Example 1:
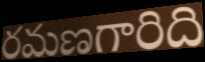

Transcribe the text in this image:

రమణగారిది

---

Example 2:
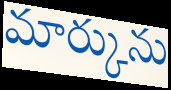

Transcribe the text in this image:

మార్కును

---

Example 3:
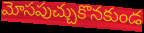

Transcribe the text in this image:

మోసపుచ్చుకొనకుండ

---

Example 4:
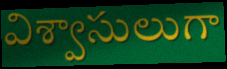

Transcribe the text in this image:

విశ్వాసులుగా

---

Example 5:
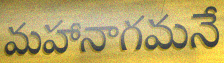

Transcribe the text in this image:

మహానాగమనే